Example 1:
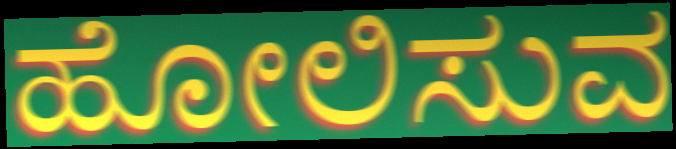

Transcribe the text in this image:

ಹೋಲಿಸುವ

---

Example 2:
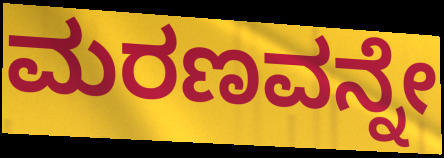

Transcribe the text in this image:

ಮರಣವನ್ನೇ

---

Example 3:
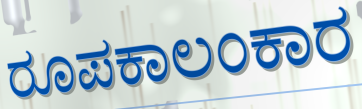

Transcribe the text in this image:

ರೂಪಕಾಲಂಕಾರ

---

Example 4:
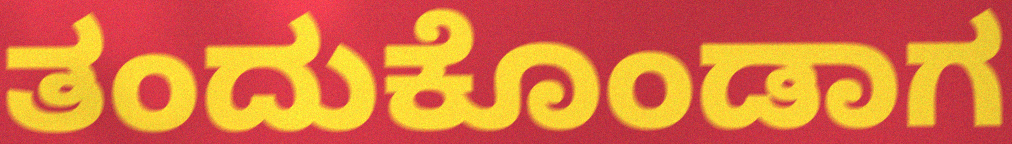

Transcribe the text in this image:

ತಂದುಕೊಂಡಾಗ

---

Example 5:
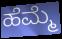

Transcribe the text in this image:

ಹೆಮ್ಮೆ